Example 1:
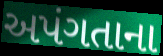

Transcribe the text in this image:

અપંગતાના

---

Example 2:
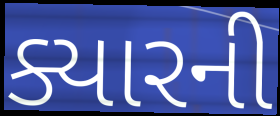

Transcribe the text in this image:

ક્યારની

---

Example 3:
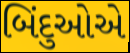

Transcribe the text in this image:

બિંદુઓએ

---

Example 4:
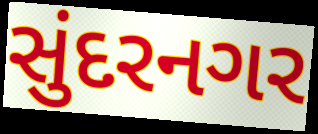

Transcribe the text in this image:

સુંદરનગર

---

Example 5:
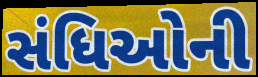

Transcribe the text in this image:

સંધિઓની